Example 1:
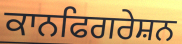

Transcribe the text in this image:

ਕਾਨਫਿਗਰੇਸ਼ਨ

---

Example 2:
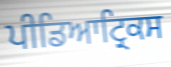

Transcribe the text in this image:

ਪੀਡਿਆਟ੍ਰਿਕਸ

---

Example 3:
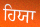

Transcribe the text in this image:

ਹਿਯਾ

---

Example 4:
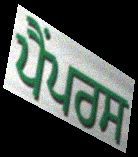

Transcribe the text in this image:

ਪੈਂਪਰਸ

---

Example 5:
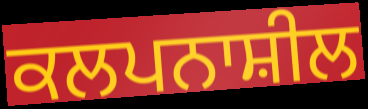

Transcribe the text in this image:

ਕਲਪਨਾਸ਼ੀਲ